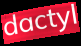
dactyl